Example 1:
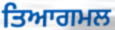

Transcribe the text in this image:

ਤਿਆਗਮਲ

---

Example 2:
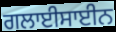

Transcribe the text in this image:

ਗਲਾਈਸਾਈਨ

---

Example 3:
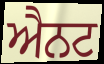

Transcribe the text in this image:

ਐਨਟ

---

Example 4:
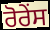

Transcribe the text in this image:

ਰੋਰੇਂਸ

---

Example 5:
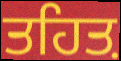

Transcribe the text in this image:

ਤਹਿਤ਼